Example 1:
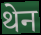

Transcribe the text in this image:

थेन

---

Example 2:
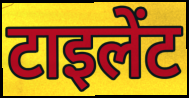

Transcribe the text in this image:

टाइलेंट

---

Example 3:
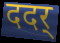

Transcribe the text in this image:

ददर्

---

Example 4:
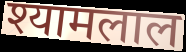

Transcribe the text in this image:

श्यामलाल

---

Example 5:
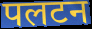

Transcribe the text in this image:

पलटन